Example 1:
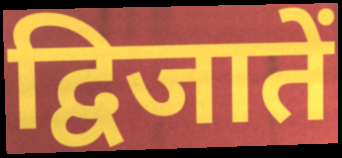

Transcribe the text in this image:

द्विजातें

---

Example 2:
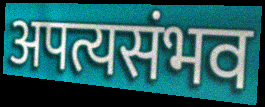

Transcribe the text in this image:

अपत्यसंभव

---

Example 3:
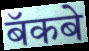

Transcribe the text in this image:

बॅकबे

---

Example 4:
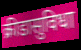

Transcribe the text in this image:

क्रीडासुविधा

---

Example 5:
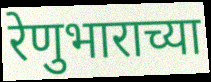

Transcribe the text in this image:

रेणुभाराच्या